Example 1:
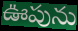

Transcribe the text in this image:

ఊపును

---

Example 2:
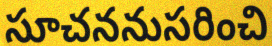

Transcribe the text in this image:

సూచననుసరించి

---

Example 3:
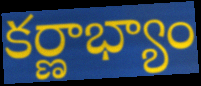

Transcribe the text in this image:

కర్ణాభ్యాం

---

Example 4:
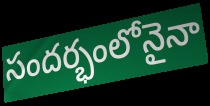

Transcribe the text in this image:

సందర్భంలోనైనా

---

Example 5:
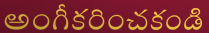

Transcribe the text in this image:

అంగీకరించకండి